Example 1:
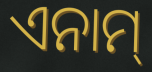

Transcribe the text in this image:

ଏନାମ୍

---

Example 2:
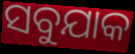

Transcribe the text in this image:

ସବୁଯାକ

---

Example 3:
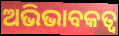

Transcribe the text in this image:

ଅଭିଭାବକତ୍ବ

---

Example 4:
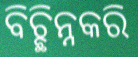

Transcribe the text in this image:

ବିଚ୍ଛିନ୍ନକରି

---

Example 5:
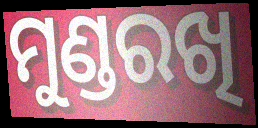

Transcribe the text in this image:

ମୁଣ୍ଡରଖି